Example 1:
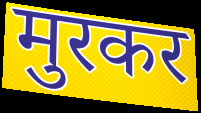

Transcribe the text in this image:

मुरकर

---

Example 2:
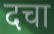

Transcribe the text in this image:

दचा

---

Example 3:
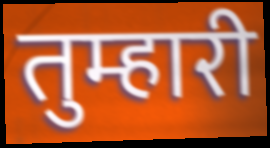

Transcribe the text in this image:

तुम्‍हारी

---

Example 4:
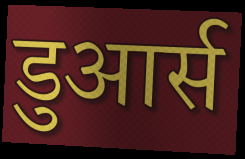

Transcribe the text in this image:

डुआर्स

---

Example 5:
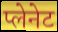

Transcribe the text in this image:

प्लेनेट